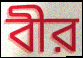
বীর